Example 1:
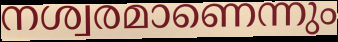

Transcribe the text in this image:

നശ്വരമാണെന്നും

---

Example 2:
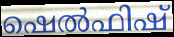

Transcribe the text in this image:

ഷെൽഫിഷ്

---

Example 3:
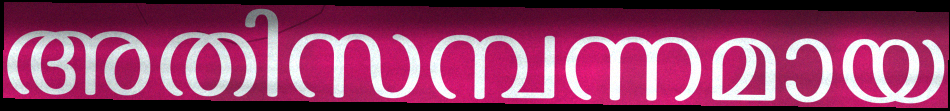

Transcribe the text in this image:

അതിസമ്പന്നമായ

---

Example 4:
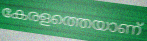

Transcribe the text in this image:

കേരളത്തെയാണ്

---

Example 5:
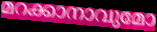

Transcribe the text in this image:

മറക്കാനാവുമോ